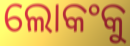
ଲୋକଂକୁ